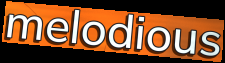
melodious